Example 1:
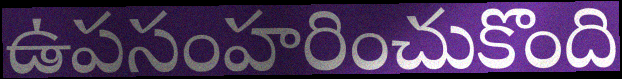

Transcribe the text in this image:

ఉపసంహరించుకొంది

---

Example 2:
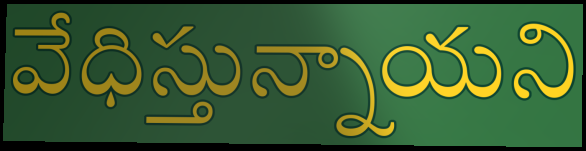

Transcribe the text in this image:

వేధిస్తున్నాయని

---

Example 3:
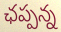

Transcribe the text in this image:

ఛప్పన్న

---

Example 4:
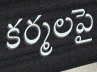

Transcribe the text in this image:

కర్మలపై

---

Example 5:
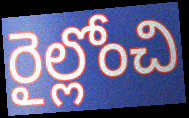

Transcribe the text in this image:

రైల్లోంచి